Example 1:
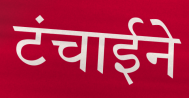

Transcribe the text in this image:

टंचाईने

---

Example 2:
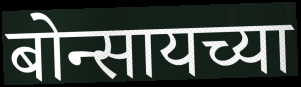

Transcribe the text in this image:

बोन्सायच्या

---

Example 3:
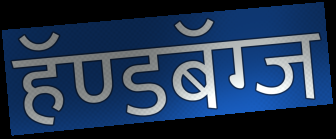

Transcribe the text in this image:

हॅण्डबॅग्ज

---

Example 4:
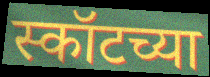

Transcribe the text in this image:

स्कॉटच्या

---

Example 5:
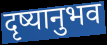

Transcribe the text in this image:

दृष्यानुभव